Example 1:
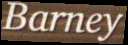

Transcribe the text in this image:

Barney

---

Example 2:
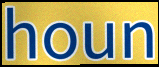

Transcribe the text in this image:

houn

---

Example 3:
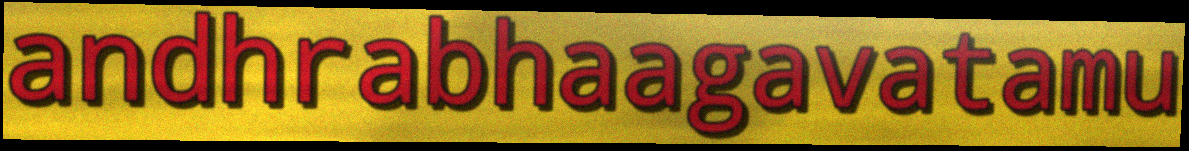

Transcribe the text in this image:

andhrabhaagavatamu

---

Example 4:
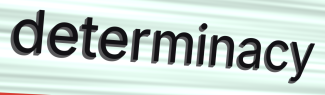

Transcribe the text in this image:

determinacy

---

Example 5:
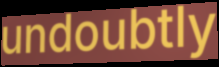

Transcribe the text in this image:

undoubtly